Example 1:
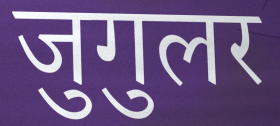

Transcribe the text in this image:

जुगुलर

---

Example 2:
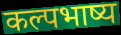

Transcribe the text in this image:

कल्पभाष्य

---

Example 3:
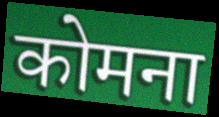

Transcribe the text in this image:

कोमना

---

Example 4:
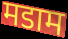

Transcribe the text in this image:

मडाम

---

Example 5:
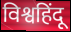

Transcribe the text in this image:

विश्वहिंदू